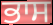
ਭਾਸ